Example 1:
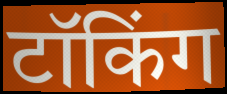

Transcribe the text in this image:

टॉकिंग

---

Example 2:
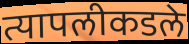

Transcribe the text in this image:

त्यापलीकडले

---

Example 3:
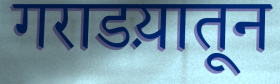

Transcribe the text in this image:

गराडय़ातून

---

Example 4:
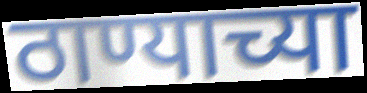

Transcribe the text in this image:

ठाण्याच्या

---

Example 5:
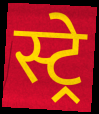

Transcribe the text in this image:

स्ट्रे